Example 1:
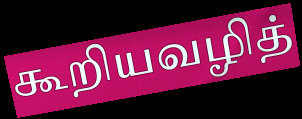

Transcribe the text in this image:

கூறியவழித்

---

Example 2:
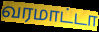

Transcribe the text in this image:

வரமாட்டா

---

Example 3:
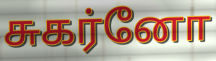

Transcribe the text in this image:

சுகர்னோ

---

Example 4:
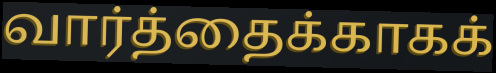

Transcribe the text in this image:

வார்த்தைக்காகக்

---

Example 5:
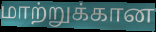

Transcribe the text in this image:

மாற்றுக்கான